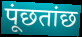
पूंछतांछ